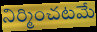
నిర్మించటమే